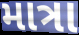
માત્રા